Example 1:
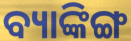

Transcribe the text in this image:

ବ୍ୟାଙ୍କିଙ୍ଗ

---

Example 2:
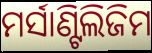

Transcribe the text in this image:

ମର୍ସାଣ୍ଟିଲିଜିମ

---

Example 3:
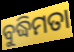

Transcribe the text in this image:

ବୁଦ୍ଧିମତା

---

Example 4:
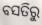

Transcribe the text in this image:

ବସତିରୁ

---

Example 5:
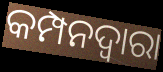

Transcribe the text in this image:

କମ୍ପନଦ୍ୱାରା